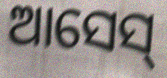
ଆସେସ୍